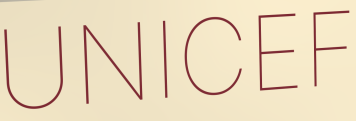
UNICEF